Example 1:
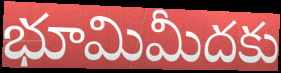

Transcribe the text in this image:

భూమిమీదకు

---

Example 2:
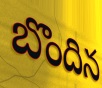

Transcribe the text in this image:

బొందిన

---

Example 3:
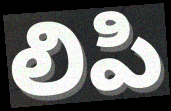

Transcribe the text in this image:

లిపి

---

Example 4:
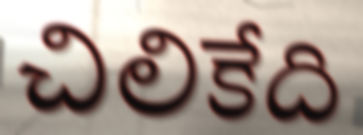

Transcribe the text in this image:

చిలికేది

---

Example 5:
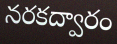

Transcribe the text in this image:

నరకద్వారం